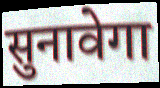
सुनावेगा